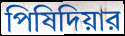
পিষিদিয়ার